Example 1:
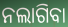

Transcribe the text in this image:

ନଲାଗିବା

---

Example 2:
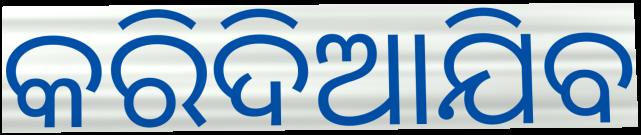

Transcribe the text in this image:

କରିଦିଆଯିବ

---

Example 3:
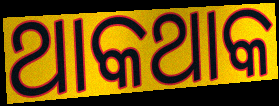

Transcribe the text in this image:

ଥାକଥାକ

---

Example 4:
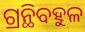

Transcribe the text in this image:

ଗ୍ରନ୍ଥିବହୁଳ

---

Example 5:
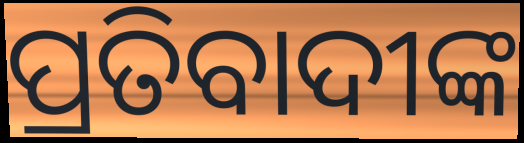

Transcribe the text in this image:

ପ୍ରତିବାଦୀଙ୍କ